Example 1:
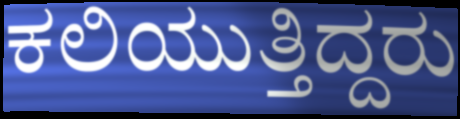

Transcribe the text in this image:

ಕಲಿಯುತ್ತಿದ್ದರು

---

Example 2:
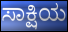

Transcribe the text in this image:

ಸಾಕ್ಷಿಯ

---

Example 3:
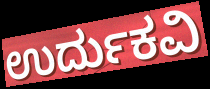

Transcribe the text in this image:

ಉರ್ದುಕವಿ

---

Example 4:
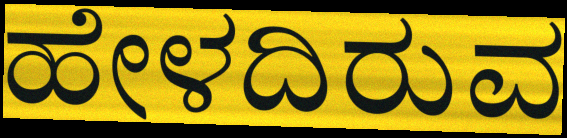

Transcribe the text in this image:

ಹೇಳದಿರುವ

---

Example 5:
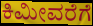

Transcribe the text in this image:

ಕಿಮೀವರೆಗೆ